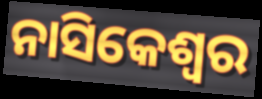
ନାସିକେଶ୍ୱର